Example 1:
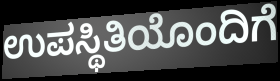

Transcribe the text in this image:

ಉಪಸ್ಥಿತಿಯೊಂದಿಗೆ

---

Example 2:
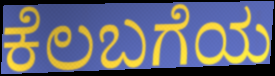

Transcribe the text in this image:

ಕೆಲಬಗೆಯ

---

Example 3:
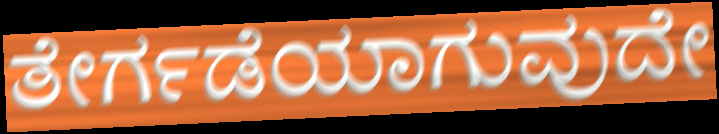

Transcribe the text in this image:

ತೇರ್ಗಡೆಯಾಗುವುದೇ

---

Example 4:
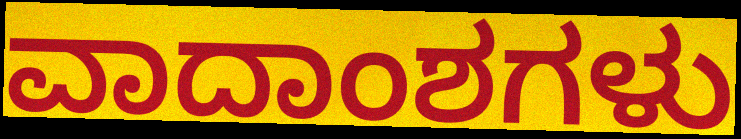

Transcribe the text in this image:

ವಾದಾಂಶಗಳು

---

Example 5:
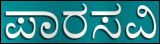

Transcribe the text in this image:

ಪಾರಸವಿ